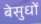
बेसुधों